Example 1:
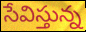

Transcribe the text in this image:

సేవిస్తున్న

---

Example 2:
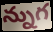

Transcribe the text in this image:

న్నుగ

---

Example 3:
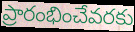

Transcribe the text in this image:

ప్రారంభించేవరకు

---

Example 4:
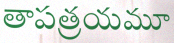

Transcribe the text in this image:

తాపత్రయమూ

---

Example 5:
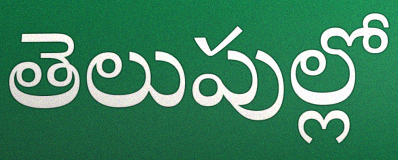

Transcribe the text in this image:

తెలుపుల్లో